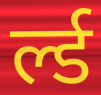
र्ल्ड